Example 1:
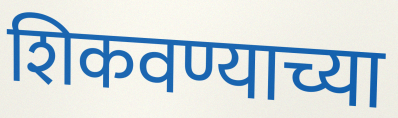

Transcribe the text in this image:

शिकवण्याच्या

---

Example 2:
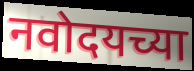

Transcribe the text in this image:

नवोदयच्या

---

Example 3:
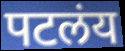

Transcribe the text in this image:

पटलंय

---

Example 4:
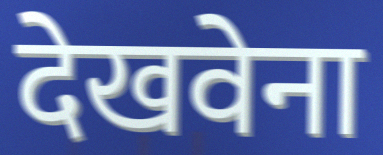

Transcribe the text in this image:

देखवेना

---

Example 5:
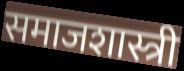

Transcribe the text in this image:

समाजशास्त्री